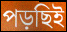
পড়ছিই